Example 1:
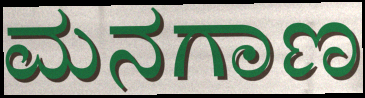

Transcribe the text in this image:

ಮನಗಾಣ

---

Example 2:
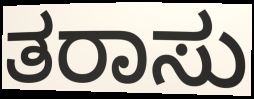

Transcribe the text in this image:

ತರಾಸು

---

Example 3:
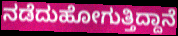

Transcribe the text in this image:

ನಡೆದುಹೋಗುತ್ತಿದ್ದಾನೆ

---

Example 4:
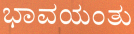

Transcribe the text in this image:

ಭಾವಯಂತು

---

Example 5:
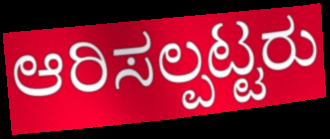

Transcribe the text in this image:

ಆರಿಸಲ್ಪಟ್ಟರು